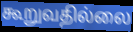
கூறுவதில்லை